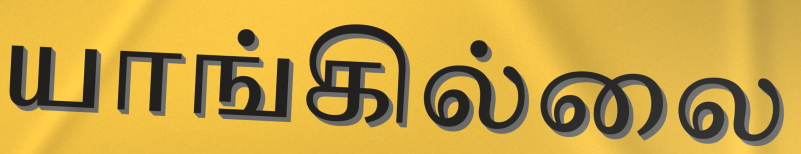
யாங்கில்லை